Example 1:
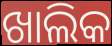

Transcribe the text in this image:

ଖାଲିକ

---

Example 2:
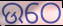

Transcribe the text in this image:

ଉଠେ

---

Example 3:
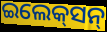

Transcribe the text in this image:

ଇଲେକ୍‌ସନ୍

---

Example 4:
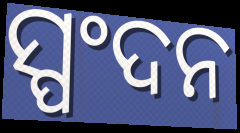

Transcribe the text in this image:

ସ୍ପଂଦନ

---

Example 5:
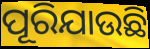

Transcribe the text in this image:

ପୂରିଯାଉଛି